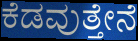
ಕೆಡವುತ್ತೇನೆ